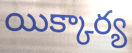
యిక్కార్య